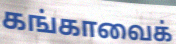
கங்காவைக்